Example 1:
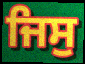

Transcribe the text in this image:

ਜਿਸੁ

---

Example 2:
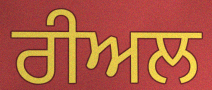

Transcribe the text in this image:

ਰੀਅਲ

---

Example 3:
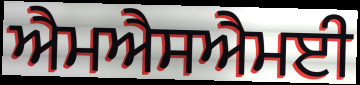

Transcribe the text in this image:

ਐਮਐਸਐਮਈ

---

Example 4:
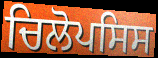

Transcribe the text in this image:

ਚਿਲੋਪਸਿਸ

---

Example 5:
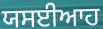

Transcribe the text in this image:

ਯਸਈਆਹ